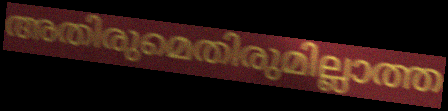
അതിരുമെതിരുമില്ലാത്ത